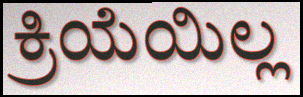
ಕ್ರಿಯೆಯಿಲ್ಲ